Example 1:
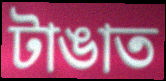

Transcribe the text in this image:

টাঙাত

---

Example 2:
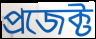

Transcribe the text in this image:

প্রজেক্ট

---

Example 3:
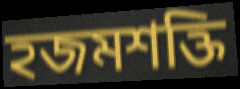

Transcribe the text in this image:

হজমশক্তি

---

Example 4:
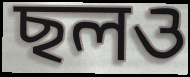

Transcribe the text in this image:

ছলও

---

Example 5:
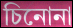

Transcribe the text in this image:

চিনোনা